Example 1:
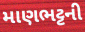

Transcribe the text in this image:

માણભટ્ટની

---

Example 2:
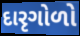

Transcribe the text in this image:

દારૃગોળો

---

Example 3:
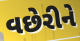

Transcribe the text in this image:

વછેરીને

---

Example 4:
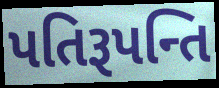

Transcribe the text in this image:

પતિરૂપન્તિ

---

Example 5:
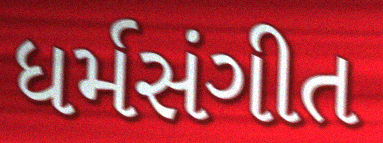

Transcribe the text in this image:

ધર્મસંગીત